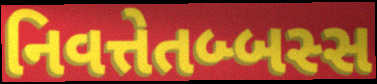
નિવત્તેતબ્બસ્સ